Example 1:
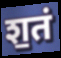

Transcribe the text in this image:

श॒तं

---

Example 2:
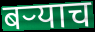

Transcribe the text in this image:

बऱ्याच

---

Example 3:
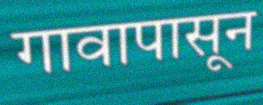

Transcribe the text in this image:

गावापासून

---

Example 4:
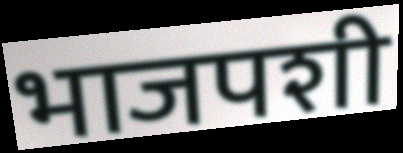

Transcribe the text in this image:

भाजपशी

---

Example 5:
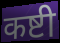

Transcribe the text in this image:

कष्टी